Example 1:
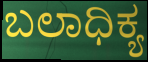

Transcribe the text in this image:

ಬಲಾಧಿಕ್ಯ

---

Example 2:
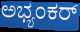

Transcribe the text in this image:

ಅಭ್ಯಂಕರ್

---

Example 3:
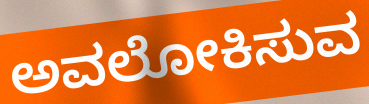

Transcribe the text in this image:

ಅವಲೋಕಿಸುವ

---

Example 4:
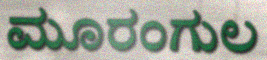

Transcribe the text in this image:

ಮೂರಂಗುಲ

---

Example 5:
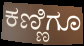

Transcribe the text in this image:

ಕಣ್ಣಿಗೂ